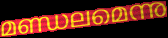
മണ്ഡലമെന്നു